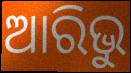
ଆରିଭୁ